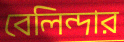
বেলিন্দার